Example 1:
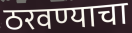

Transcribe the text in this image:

ठरवण्याचा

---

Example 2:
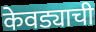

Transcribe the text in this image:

केवड्याची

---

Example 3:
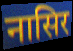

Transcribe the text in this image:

नासिर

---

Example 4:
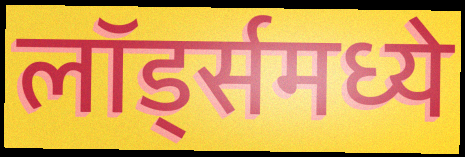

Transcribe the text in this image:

लॉर्ड्समध्ये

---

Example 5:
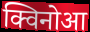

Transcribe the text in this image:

क्विनोआ